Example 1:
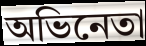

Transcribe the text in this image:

অভিনেতা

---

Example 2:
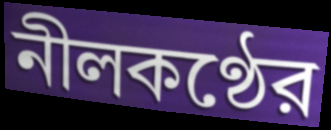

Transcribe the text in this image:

নীলকণ্ঠের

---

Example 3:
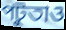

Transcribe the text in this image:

পটুতাও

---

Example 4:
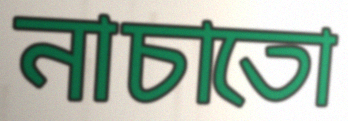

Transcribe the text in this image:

নাচাতো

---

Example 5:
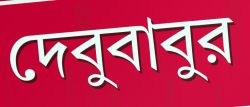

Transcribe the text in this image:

দেবুবাবুর